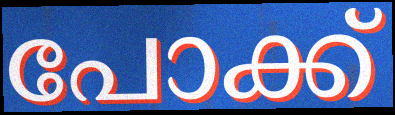
പോക്ക്